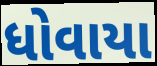
ધોવાયા